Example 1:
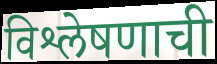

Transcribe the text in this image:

विश्लेषणाची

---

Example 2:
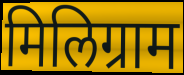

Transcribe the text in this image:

मिलिग्राम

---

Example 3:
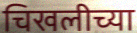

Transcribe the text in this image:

चिखलीच्या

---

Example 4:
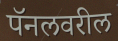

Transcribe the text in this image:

पॅनलवरील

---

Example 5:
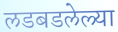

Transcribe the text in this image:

लडबडलेल्या